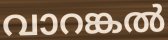
വാറങ്കൽ